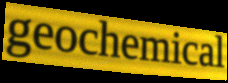
geochemical